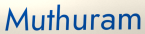
Muthuram